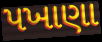
પખાણા